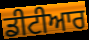
ਡੀਟੀਆਰ